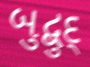
બુદ્બુદ્